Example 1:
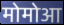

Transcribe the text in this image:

मोमोआ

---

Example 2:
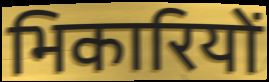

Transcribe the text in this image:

भिकारियों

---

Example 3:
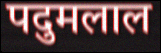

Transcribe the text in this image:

पदुमलाल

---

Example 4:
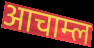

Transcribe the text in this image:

आचाम्ल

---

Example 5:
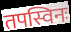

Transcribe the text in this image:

तपस्विनः